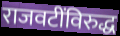
राजवटींविरुद्ध